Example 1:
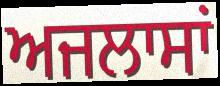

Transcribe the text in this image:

ਅਜਲਾਸਾਂ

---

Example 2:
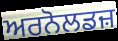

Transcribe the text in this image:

ਅਰਨੋਲਡਜ਼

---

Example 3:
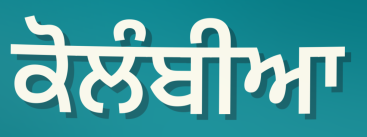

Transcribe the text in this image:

ਕੋਲੰਬੀਆ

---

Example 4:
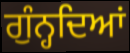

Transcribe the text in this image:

ਗੁੰਨ੍ਹਦਿਆਂ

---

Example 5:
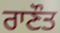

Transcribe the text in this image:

ਰਾਣੌਤ